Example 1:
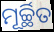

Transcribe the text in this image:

ମୂର୍ଚ୍ଛିତ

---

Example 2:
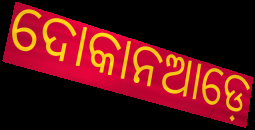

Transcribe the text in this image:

ଦୋକାନଆଡ଼େ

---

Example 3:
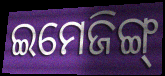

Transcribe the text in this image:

ଇମେଜିଙ୍ଗ୍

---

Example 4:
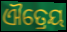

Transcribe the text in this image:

ଐତ୍ରେୟ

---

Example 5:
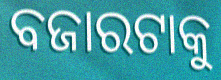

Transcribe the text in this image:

ବଜାରଟାକୁ